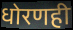
धोरणही